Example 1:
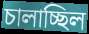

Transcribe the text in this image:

চালাচ্ছিল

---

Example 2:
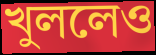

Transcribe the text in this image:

খুললেও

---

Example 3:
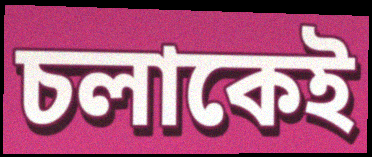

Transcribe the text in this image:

চলাকেই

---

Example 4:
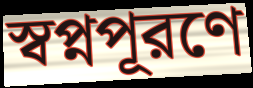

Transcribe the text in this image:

স্বপ্নপূরণে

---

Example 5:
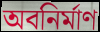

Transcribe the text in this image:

অবনির্মাণ